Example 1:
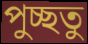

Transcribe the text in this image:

পুচ্ছতু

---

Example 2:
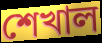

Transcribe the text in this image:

শেখাল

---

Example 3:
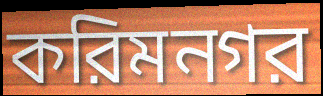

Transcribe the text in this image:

করিমনগর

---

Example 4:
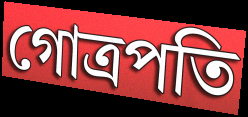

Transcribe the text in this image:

গোত্রপতি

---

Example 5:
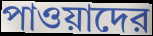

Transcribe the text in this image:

পাওয়াদের